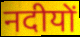
नदीयों